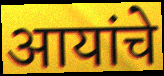
आयांचे